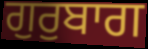
ਗੁਰੁਬਾਗ